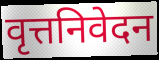
वृत्तनिवेदन